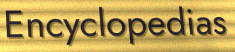
Encyclopedias